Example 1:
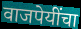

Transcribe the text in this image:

वाजपेयींचा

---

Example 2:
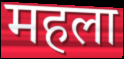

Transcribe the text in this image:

महला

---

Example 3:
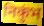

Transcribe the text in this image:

निकुंभ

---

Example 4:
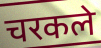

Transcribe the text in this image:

चरकले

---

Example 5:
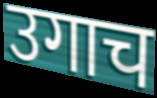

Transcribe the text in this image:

उगाच